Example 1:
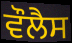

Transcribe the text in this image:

ਵੌਲੈਸ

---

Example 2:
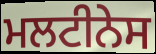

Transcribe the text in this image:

ਮਲਟੀਨੇਸ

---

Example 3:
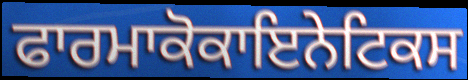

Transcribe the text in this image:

ਫਾਰਮਾਕੋਕਾਇਨੇਟਿਕਸ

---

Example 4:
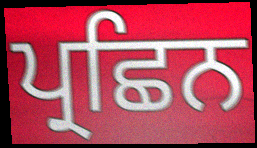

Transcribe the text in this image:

ਪ੍ਰਛਿਨ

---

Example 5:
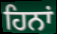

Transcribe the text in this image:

ਹਿਨਾਂ